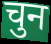
चुन